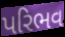
પરિભવ